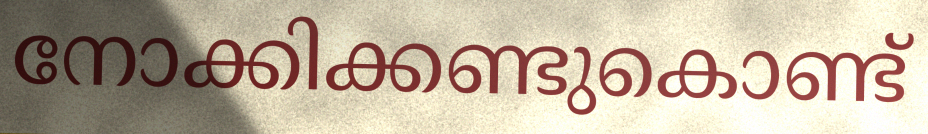
നോക്കിക്കണ്ടുകൊണ്ട്